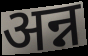
अन्न